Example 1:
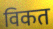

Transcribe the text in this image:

विकत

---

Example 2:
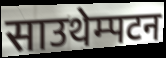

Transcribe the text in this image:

साउथेम्पटन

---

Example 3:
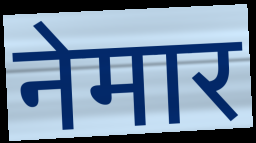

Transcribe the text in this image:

नेमार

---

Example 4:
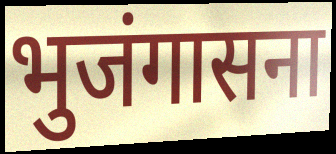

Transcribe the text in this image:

भुजंगासना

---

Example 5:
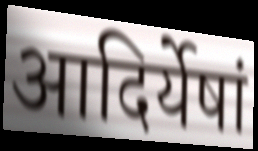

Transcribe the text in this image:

आदिर्येषां